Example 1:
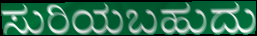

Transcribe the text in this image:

ಸುರಿಯಬಹುದು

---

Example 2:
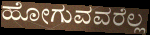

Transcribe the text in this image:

ಹೋಗುವವರೆಲ್ಲ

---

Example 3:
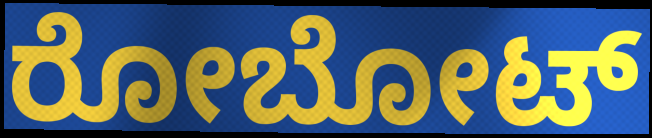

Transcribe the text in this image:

ರೋಬೋಟ್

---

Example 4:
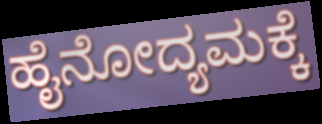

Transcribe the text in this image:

ಹೈನೋದ್ಯಮಕ್ಕೆ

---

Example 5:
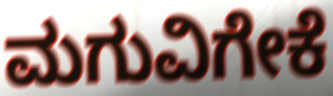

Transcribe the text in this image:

ಮಗುವಿಗೇಕೆ